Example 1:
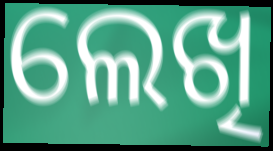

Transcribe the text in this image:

ଲେଖି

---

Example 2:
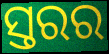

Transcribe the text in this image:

ସ୍ତରର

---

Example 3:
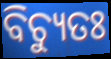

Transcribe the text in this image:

ବିଚ୍ୟୁତଃ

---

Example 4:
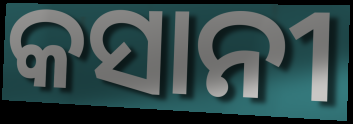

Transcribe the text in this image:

କସାନୀ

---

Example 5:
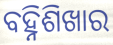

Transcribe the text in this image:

ବହ୍ନିଶିଖାର